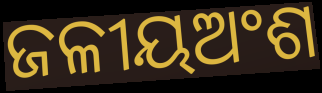
ଜଳୀୟଅଂଶ